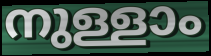
നുള്ളാം